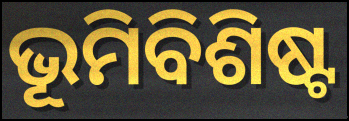
ଭୂମିବିଶିଷ୍ଟ